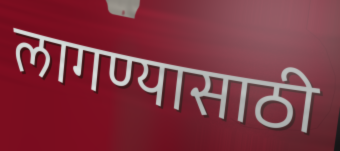
लागण्यासाठी